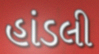
હાંડલી